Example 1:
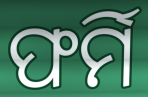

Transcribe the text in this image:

ଫର୍ମି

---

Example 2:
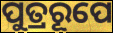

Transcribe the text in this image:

ପୁତ୍ରରୂପେ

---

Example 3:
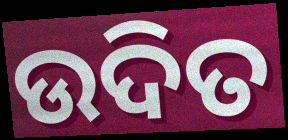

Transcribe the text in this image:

ଉଦିତ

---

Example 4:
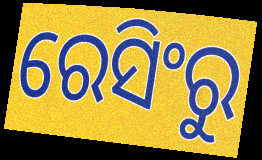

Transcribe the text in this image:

ରେସିଂରୁ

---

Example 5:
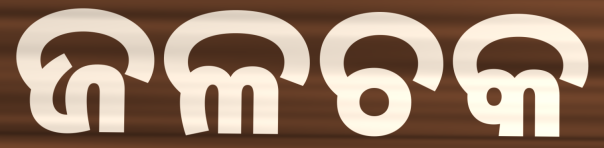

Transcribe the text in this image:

ଜଳଚକ